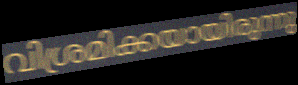
വിശ്രമിക്കയായിരുന്നു